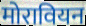
मोरावियन